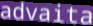
advaita